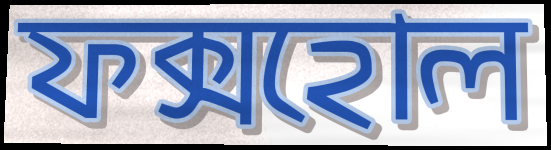
ফক্সহোল